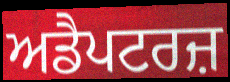
ਅਡੈਪਟਰਜ਼